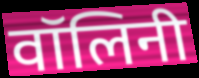
वॉलिनी